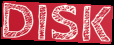
DISK